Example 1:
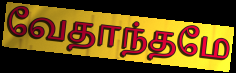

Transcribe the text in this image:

வேதாந்தமே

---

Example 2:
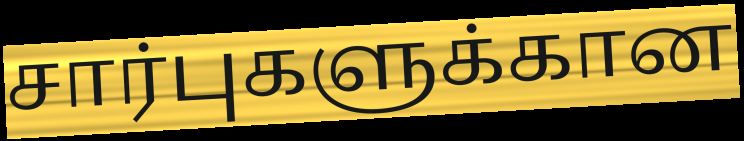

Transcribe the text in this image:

சார்புகளுக்கான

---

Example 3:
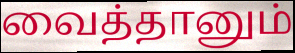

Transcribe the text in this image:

வைத்தானும்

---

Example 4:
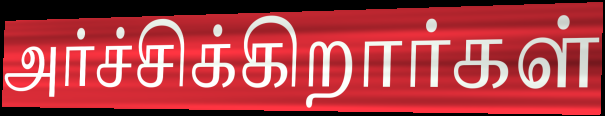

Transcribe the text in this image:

அர்ச்சிக்கிறார்கள்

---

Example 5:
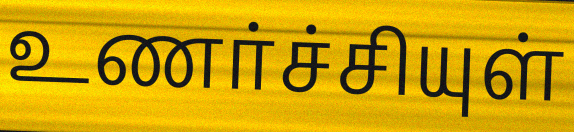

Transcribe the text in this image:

உணர்ச்சியுள்